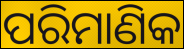
ପରିମାଣିକ